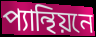
প্যান্থিয়নে